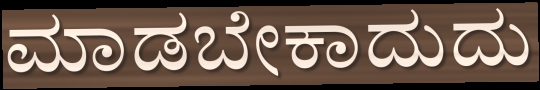
ಮಾಡಬೇಕಾದುದು